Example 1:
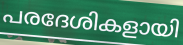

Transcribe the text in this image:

പരദേശികളായി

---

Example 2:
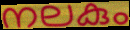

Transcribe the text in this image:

നലകും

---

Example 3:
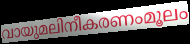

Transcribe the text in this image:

വായുമലിനീകരണംമൂലം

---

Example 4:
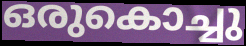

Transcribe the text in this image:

ഒരുകൊച്ചു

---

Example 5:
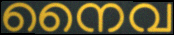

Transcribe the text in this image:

നൈവ